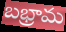
బభ్రామ